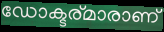
ഡോക്ടര്മാരാണ്